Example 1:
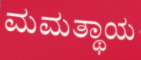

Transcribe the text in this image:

ಮಮತ್ಥಾಯ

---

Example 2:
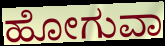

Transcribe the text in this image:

ಹೋಗುವಾ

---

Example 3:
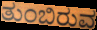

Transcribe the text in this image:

ತುಂಬಿರುವ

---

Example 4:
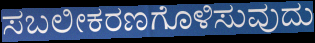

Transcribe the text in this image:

ಸಬಲೀಕರಣಗೊಳಿಸುವುದು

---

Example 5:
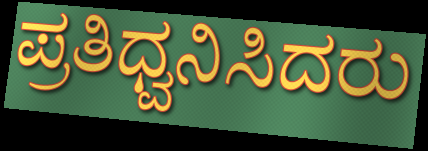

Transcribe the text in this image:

ಪ್ರತಿಧ್ವನಿಸಿದರು